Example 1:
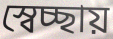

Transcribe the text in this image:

স্বেচ্ছায়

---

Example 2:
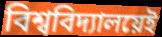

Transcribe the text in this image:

বিশ্ববিদ্যালয়েই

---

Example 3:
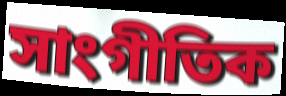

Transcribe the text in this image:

সাংগীতিক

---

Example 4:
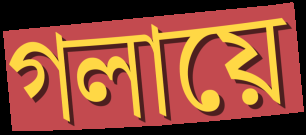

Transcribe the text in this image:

গলায়ে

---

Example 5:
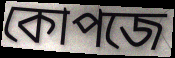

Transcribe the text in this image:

কোপজে